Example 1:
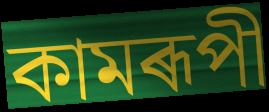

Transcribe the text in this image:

কামৰূপী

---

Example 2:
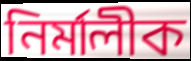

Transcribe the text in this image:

নিৰ্মালীক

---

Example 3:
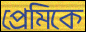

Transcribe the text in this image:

প্ৰেমিকে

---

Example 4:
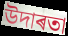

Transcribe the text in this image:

উদাৰতা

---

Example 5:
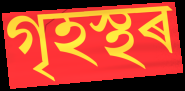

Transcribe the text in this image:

গৃহস্থৰ